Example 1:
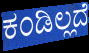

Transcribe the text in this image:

ಕಂಡಿಲ್ಲದೆ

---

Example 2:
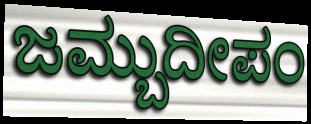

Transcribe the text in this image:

ಜಮ್ಬುದೀಪಂ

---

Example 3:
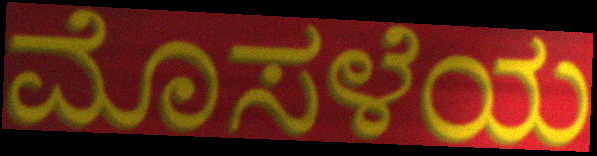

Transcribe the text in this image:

ಮೊಸಳೆಯ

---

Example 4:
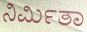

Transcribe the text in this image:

ನಿರ್ಮಿತಾ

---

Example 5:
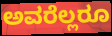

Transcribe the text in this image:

ಅವರೆಲ್ಲರೂ